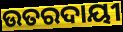
ଉତରଦାୟୀ